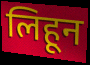
लिहून